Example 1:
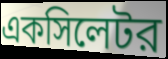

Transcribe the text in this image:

একসিলেটর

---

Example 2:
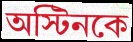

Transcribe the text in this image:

অস্টিনকে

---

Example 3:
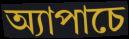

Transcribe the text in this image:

অ্যাপাচে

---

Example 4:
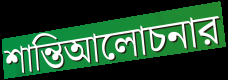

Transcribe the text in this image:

শান্তিআলোচনার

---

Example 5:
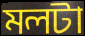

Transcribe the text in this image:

মলটা